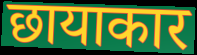
छायाकार